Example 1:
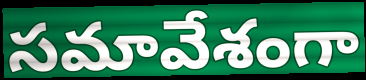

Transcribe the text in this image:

సమావేశంగా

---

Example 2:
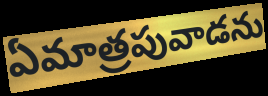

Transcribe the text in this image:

ఏమాత్రపువాడను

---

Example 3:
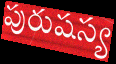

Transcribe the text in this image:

పురుషస్య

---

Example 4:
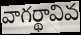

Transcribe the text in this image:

వాగర్థావివ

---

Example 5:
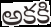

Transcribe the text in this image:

అకకి